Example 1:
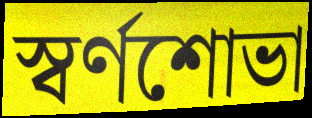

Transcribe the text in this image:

স্বর্ণশোভা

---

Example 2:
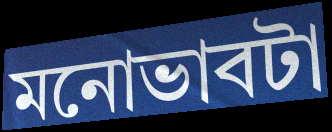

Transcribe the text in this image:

মনোভাবটা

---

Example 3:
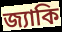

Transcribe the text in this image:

জ্যাকি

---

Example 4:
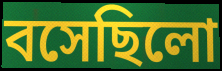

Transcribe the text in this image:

বসেছিলো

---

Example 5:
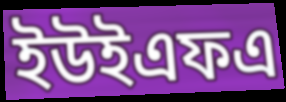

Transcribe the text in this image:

ইউইএফএ